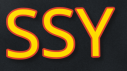
SSY